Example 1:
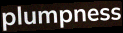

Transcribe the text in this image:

plumpness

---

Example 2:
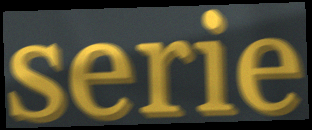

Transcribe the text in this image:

serie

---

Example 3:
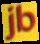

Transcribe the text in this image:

jb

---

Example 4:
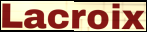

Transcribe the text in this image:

Lacroix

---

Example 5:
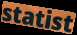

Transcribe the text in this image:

statist